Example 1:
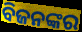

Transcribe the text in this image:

ବିଜନଙ୍କର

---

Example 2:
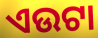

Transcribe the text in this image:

ଏଉଟା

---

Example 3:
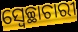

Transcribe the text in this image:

ସ୍ଵେଚ୍ଛାଚାରୀ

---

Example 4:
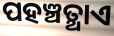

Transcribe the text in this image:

ପହଞ୍ଚତ୍ଥାଏ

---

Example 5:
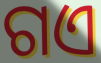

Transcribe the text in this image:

ଗଏ